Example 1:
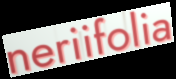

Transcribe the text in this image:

neriifolia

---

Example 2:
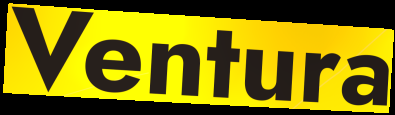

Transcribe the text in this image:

Ventura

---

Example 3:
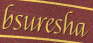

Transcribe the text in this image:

bsuresha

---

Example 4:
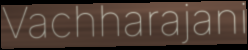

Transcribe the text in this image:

Vachharajani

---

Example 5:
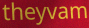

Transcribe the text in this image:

theyvam